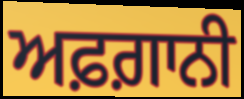
ਅਫ਼ਗ਼ਾਨੀ